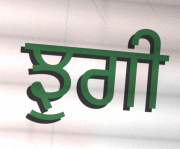
ਝੁਗੀ